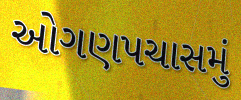
ઓગણપચાસમું